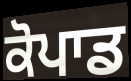
ਕੋਪਾਡ